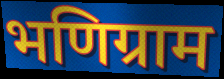
भणिग्राम